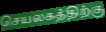
செயலகத்திற்கு